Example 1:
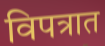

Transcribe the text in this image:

विपत्रात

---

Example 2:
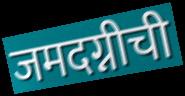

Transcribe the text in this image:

जमदग्नीची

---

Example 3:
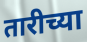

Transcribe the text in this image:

तारीच्या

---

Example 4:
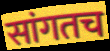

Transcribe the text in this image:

सांगतच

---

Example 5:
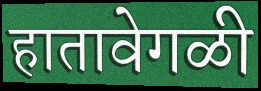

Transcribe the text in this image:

हातावेगळी